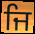
ਜਿ